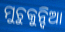
ମୁଚୁକୁନ୍ଦିଆ